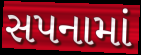
સપનામાં